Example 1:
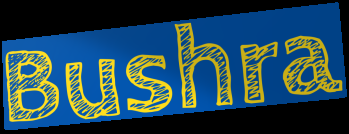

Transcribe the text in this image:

Bushra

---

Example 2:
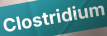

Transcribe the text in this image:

Clostridium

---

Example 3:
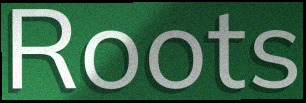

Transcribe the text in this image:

Roots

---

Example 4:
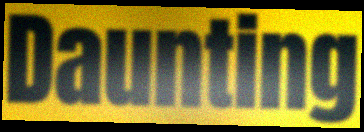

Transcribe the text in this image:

Daunting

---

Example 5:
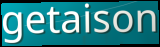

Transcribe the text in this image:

getaison